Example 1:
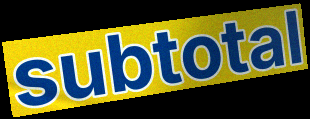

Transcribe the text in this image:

subtotal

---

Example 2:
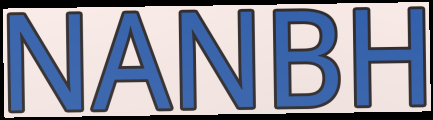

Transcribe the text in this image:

NANBH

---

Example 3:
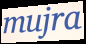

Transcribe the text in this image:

mujra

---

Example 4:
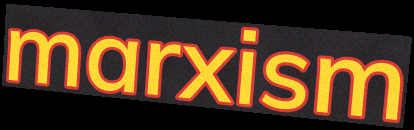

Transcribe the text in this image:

marxism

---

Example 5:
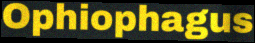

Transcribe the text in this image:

Ophiophagus